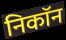
निकॉन